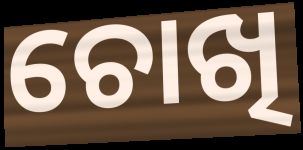
ଚୋଖି